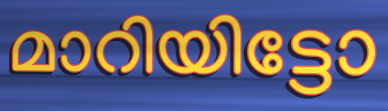
മാറിയിട്ടോ